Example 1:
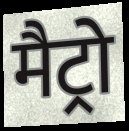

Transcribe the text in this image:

मैट्रो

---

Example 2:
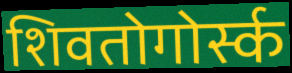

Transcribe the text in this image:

शिवतोगोर्स्क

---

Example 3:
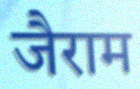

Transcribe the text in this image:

जैराम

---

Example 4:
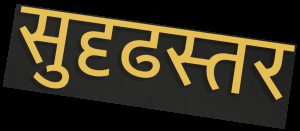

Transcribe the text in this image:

सुदृढस्तर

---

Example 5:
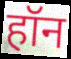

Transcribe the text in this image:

हॉन